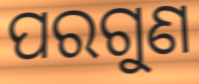
ପରଗୁଣ